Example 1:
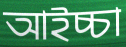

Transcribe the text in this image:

আইচ্চা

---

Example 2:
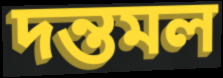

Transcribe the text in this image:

দন্তমল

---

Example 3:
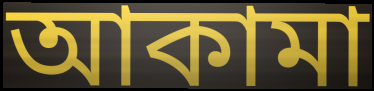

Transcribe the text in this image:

আকামা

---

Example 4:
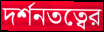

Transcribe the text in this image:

দর্শনতত্বের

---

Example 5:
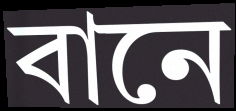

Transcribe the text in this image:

বানে